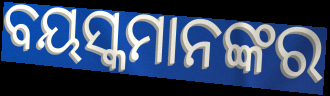
ବୟସ୍କମାନଙ୍କର